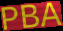
PBA